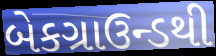
બેકગ્રાઉન્ડથી